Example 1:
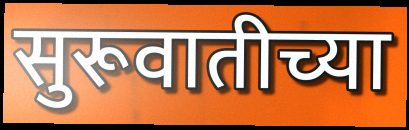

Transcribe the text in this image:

सुरूवातीच्या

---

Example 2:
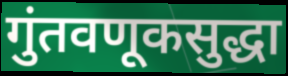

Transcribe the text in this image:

गुंतवणूकसुद्धा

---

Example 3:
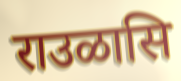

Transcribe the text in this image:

राउळासि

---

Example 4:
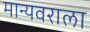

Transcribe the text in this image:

मान्यवराला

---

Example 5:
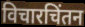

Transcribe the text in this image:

विचारचिंतन